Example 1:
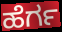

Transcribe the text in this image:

ಹೆರ್ಗ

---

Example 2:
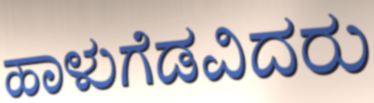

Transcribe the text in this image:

ಹಾಳುಗೆಡವಿದರು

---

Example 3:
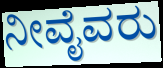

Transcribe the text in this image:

ನೀವೈವರು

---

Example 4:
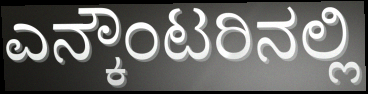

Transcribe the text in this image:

ಎನ್ಕೌಂಟರಿನಲ್ಲಿ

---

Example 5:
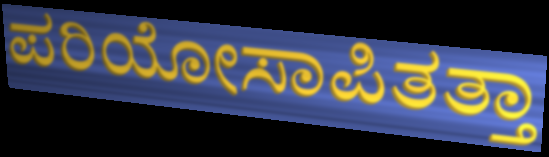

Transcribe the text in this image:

ಪರಿಯೋಸಾಪಿತತ್ತಾ